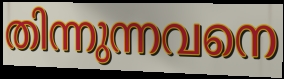
തിന്നുന്നവനെ